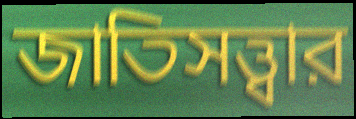
জাতিসত্ত্বার